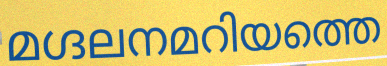
മഗ്ദലനമറിയത്തെ